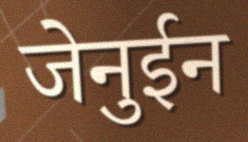
जेनुईन